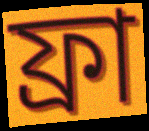
ফ্রা